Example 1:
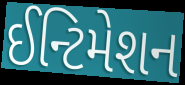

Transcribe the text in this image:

ઈન્ટિમેશન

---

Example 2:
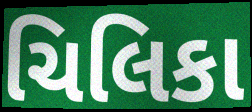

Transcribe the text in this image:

ચિલિકા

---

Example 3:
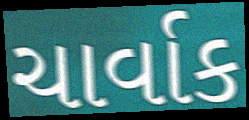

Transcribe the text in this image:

ચાર્વાક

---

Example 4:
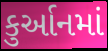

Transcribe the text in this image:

કુર્આનમાં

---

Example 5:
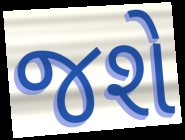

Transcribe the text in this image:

જશે